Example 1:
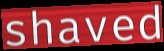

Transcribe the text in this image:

shaved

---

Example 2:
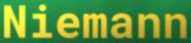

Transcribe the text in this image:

Niemann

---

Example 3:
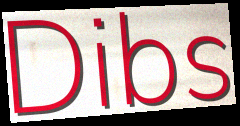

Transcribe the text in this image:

Dibs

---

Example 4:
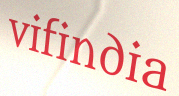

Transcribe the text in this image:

vifindia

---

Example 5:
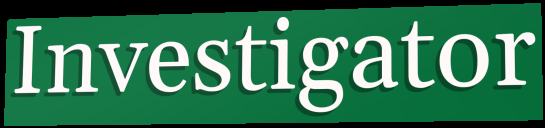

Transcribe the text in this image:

Investigator